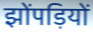
झोंपड़ियों